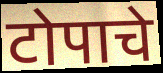
टोपाचे